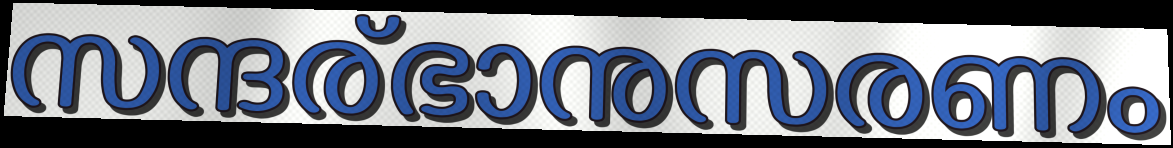
സന്ദര്ഭാനുസരണം